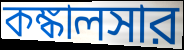
কঙ্কালসার